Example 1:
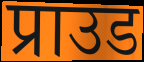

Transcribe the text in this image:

प्राउड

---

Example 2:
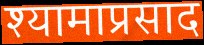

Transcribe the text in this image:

श्यामाप्रसाद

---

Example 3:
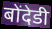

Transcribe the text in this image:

बोंदेडी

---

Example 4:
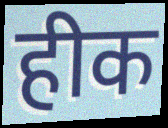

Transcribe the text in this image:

हीक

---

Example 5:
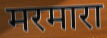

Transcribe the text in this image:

मरमारा